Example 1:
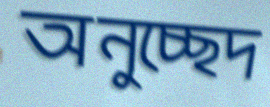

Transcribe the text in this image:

অনুচ্ছেদ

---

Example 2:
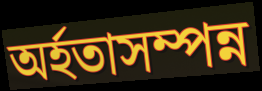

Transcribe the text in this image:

অৰ্হতাসম্পন্ন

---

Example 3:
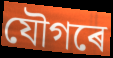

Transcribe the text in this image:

যৌগৰে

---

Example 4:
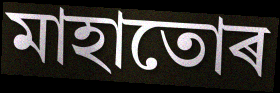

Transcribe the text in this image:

মাহাতোৰ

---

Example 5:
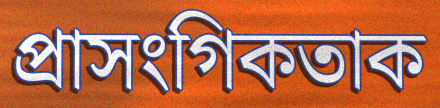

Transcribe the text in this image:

প্ৰাসংগিকতাক